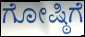
ಗೋಷ್ಠಿಗೆ